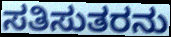
ಸತಿಸುತರನು